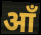
आँ